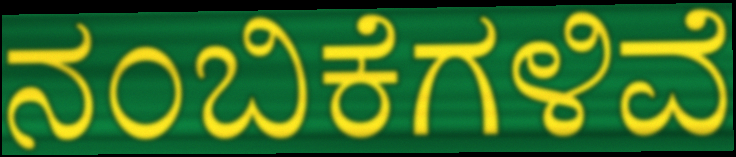
ನಂಬಿಕೆಗಳಿವೆ